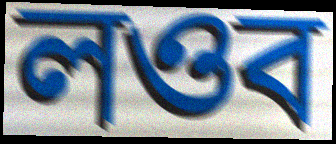
লওব